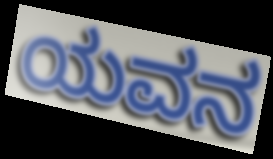
ಯವನ